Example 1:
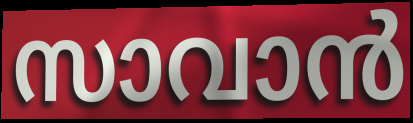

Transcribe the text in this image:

സാവാൻ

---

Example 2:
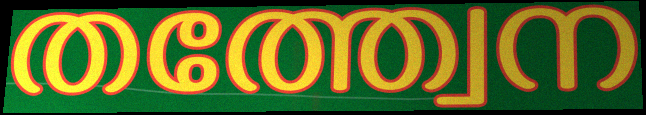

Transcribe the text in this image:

തത്ത്വേന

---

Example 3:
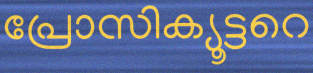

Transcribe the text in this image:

പ്രോസിക്യൂട്ടറെ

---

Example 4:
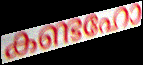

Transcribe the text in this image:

കണ്ടഹോ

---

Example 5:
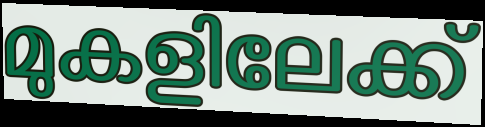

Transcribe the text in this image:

മുകളിലേക്ക്